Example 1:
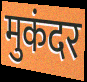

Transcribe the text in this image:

मुकंदर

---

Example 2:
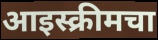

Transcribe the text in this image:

आइस्क्रीमचा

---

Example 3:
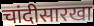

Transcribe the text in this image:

चांदीसारखा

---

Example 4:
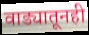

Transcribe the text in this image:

वाड्यातूनही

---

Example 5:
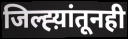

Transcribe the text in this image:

जिल्ह्य़ांतूनही